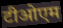
टीओएम